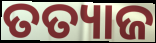
ତତ୍ୟାଜ